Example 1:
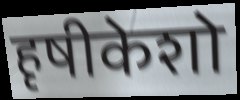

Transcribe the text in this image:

हृषीकेशो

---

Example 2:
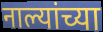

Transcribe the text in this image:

नाल्यांच्या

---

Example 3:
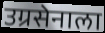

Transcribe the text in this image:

उग्रसेनाला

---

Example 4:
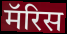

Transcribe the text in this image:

मॅरिस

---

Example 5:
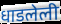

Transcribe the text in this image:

धाडलेली